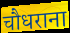
चौधराना